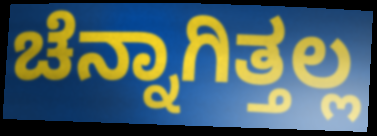
ಚೆನ್ನಾಗಿತ್ತಲ್ಲ